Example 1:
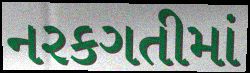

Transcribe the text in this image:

નરકગતીમાં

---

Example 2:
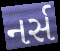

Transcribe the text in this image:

નર્સ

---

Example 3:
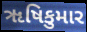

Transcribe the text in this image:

ૠષિકુમાર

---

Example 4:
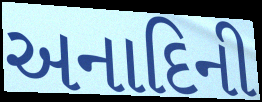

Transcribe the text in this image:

અનાદિની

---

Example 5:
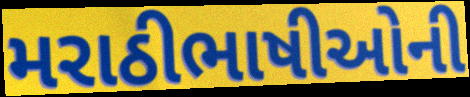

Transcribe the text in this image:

મરાઠીભાષીઓની